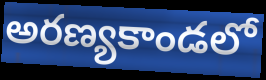
అరణ్యకాండలో